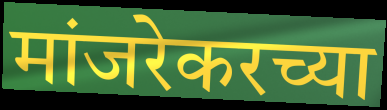
मांजरेकरच्या